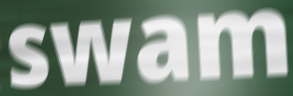
swam